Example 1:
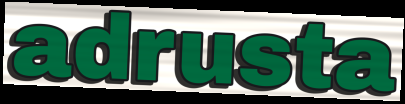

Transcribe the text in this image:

adrusta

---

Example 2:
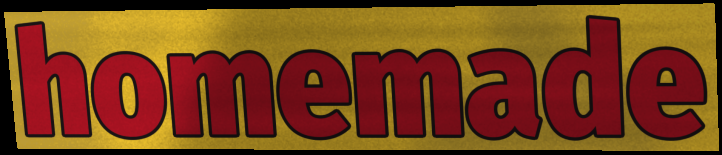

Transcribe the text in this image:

homemade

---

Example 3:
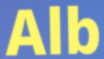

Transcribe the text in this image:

Alb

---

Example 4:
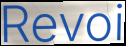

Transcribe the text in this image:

Revoi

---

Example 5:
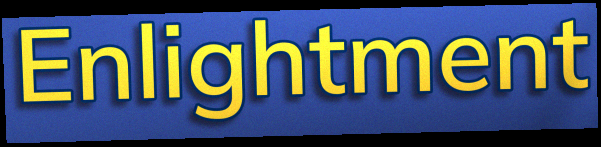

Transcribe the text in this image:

Enlightment